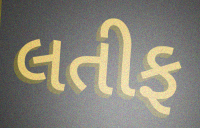
લતીફ